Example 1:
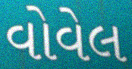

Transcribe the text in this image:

વોવેલ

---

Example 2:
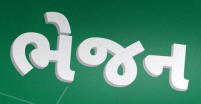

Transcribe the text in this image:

ભેજન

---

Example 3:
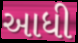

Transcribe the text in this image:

આધી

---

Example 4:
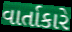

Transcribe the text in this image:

વાર્તાકારે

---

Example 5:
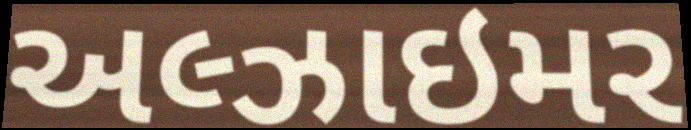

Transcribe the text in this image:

અલ્ઝાઇમર